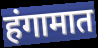
हंगामात